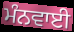
ਮੰਨਵਾਈ